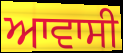
ਆਵਾਸੀ